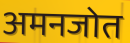
अमनजोत